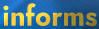
informs